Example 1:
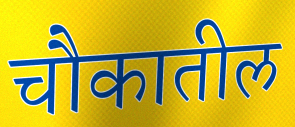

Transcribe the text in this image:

चौकातील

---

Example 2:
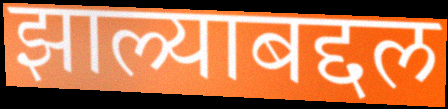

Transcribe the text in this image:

झाल्याबद्दल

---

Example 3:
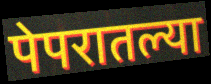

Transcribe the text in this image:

पेपरातल्या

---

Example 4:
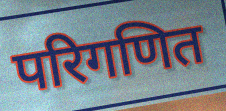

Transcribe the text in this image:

परिगणित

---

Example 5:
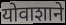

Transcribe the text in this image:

योवाशाने